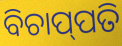
ବିଚାପ୍‌ପତି